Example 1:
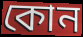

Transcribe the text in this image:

কোন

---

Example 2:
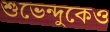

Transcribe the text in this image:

শুভেন্দুকেও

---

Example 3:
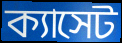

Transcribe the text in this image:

ক্যাসেট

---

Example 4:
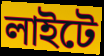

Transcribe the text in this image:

লাইটে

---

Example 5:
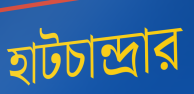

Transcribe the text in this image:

হাটচান্দ্রার